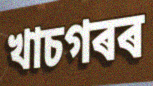
খাচগৰৰ